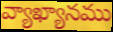
వ్యాఖ్యానము